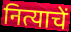
नित्याचें